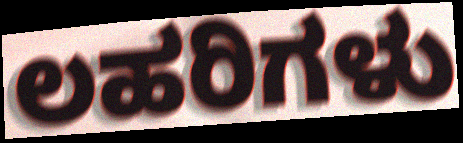
ಲಹರಿಗಳು